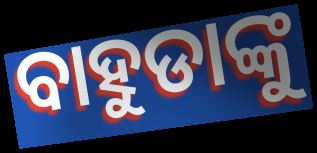
ବାହୁଡାଙ୍କୁ